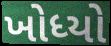
ખોધ્યો